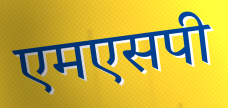
एमएसपी